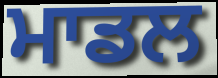
ਮਾਡਲ